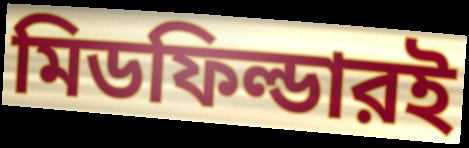
মিডফিল্ডারই